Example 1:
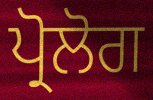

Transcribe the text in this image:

ਪ੍ਰੋਲੋਗ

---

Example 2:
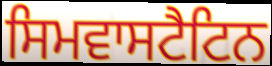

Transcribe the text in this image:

ਸਿਮਵਾਸਟੈਟਿਨ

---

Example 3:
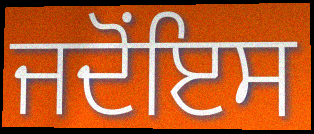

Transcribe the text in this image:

ਜਦੋਂਇਸ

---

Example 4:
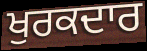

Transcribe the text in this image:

ਖੁਰਕਦਾਰ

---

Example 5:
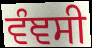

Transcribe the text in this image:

ਵੰਞਸੀ